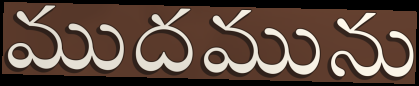
ముదమును